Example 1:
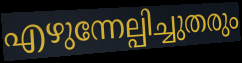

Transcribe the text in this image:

എഴുന്നേല്പിച്ചുതരും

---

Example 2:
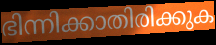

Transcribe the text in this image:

ഭിന്നിക്കാതിരിക്കുക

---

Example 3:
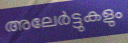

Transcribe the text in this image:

അലേർട്ടുകളും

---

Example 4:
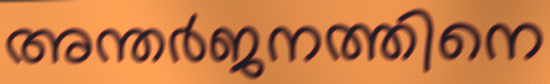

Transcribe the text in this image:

അന്തർജനത്തിനെ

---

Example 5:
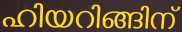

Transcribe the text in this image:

ഹിയറിങ്ങിന്